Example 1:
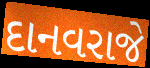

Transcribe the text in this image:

દાનવરાજે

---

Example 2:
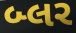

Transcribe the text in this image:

બ્લર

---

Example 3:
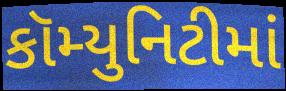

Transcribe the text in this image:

કૉમ્યુનિટીમાં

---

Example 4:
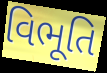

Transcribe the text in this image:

વિભૂતિ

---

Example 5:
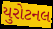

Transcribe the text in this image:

યુરોટનલ